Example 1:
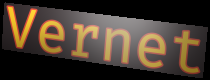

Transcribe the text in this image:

Vernet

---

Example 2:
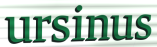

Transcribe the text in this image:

ursinus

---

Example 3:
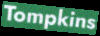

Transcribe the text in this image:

Tompkins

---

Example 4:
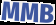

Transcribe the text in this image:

MMB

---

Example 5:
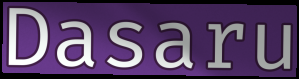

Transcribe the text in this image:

Dasaru